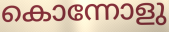
കൊന്നോളു